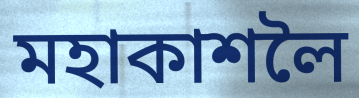
মহাকাশলৈ